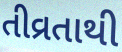
તીવ્રતાથી